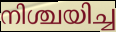
നിശ്ചയിച്ച